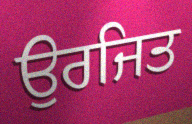
ਉਰਜਿਤ